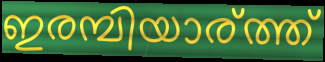
ഇരമ്പിയാര്ത്ത്